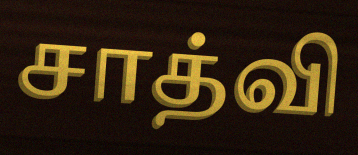
சாத்வி